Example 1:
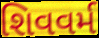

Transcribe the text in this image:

શિવવર્મ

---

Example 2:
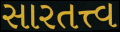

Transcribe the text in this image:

સારતત્ત્વ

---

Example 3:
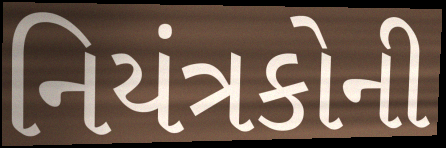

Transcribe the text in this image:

નિયંત્રકોની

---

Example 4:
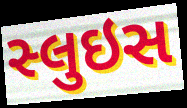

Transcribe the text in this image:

સ્લુઇસ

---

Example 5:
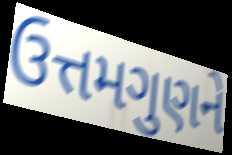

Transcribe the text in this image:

ઉત્તમગુણને